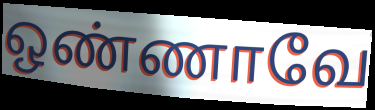
ஒண்ணாவே